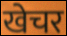
खेचर